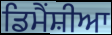
ਡਿਮੈਂਸ਼ੀਆ